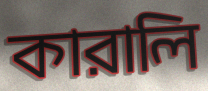
কারালি